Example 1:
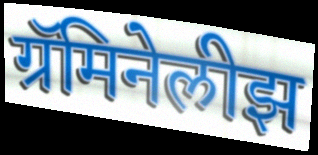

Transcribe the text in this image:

ग्रॅमिनेलीझ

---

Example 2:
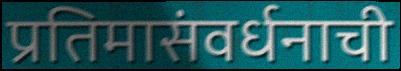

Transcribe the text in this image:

प्रतिमासंवर्धनाची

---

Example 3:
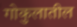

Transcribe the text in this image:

गोकुलातील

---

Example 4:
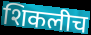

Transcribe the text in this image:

शिकलीच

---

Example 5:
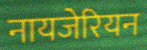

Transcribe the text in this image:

नायजेरियन